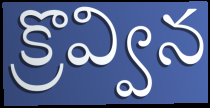
క్రొవ్విన